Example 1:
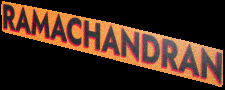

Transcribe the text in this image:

RAMACHANDRAN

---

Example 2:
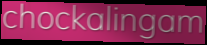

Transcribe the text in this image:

chockalingam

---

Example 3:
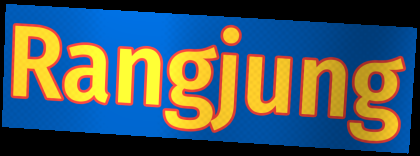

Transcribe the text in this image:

Rangjung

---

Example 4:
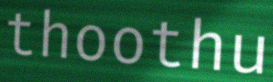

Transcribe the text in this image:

thoothu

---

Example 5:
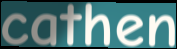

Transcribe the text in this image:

cathen